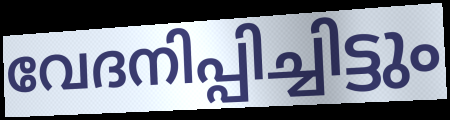
വേദനിപ്പിച്ചിട്ടും